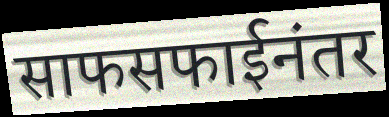
साफसफाईनंतर